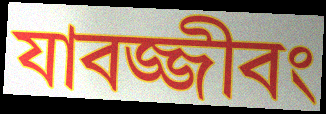
যাবজ্জীবং